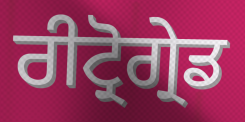
ਰੀਟ੍ਰੋਗ੍ਰੇਡ